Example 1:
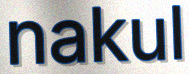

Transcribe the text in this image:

nakul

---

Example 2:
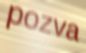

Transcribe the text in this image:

pozva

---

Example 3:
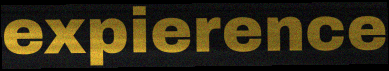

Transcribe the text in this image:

expierence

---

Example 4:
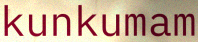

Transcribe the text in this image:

kunkumam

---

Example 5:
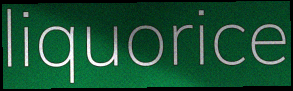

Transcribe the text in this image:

liquorice